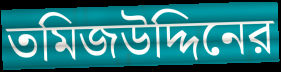
তমিজউদ্দিনের